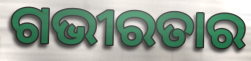
ଗଭୀରତାର